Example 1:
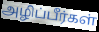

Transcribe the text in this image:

அழிப்பீர்கள்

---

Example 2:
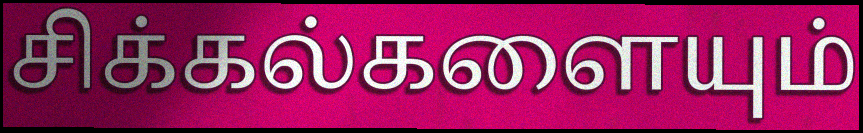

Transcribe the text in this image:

சிக்கல்களையும்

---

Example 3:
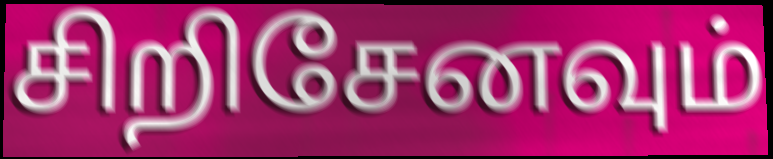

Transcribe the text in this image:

சிறிசேனவும்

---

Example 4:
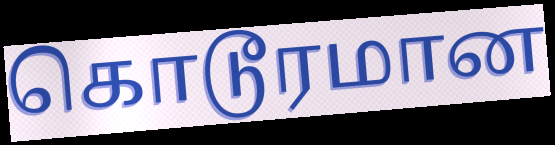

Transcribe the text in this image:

கொடூரமான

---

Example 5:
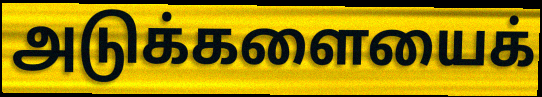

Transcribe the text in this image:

அடுக்களையைக்